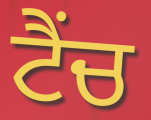
ਟੈਂਚ